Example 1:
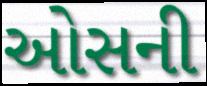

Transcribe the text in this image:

ઓસની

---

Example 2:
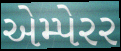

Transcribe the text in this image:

એમ્પેરર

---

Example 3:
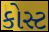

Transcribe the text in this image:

કોસ્ટ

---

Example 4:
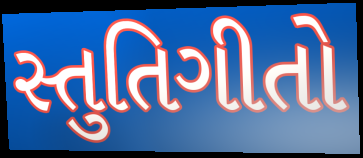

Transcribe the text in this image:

સ્તુતિગીતો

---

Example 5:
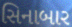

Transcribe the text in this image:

સિનાબાર